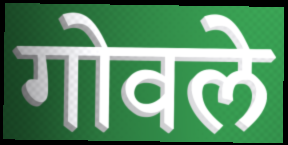
गोवले